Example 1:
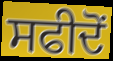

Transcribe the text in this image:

ਸਫੀਦੋਂ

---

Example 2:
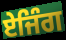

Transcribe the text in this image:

ਏਜਿੰਗ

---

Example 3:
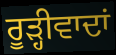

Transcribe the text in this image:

ਰੂੜ੍ਹੀਵਾਦਾਂ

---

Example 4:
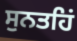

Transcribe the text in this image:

ਸੁਨਤਹਿਂ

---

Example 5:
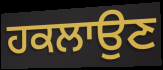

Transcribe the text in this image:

ਹਕਲਾਉਣ